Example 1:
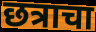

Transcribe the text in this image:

छत्राचा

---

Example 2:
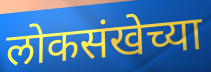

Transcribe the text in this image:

लोकसंखेच्या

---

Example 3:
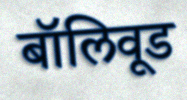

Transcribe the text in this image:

बॉलिवूड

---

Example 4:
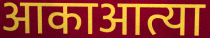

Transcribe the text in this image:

आकाआत्या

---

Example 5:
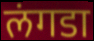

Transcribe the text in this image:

लंगडा